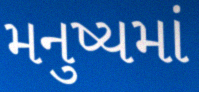
મનુષ્યમાં